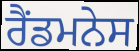
ਰੈਂਡਮਨੇਸ